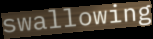
swallowing